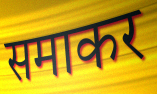
समाकर